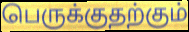
பெருக்குதற்கும்